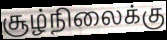
சூழ்நிலைக்கு